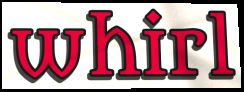
whirl